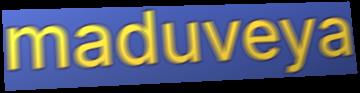
maduveya